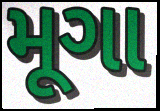
મૂગા